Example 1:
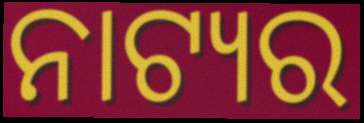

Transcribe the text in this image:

ନାଟ୍ୟର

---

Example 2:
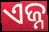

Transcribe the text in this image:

ଏଜ୍ନ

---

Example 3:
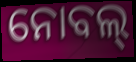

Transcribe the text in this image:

ନୋବଲ୍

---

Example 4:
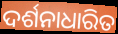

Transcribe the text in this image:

ଦର୍ଶନାଧାରିତ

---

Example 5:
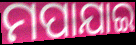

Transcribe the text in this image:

ମପାଯାଇ